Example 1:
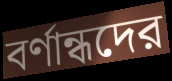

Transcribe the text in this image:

বর্ণান্ধদের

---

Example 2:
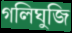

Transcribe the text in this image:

গলিঘুজি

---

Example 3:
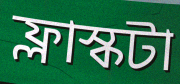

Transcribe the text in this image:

ফ্লাস্কটা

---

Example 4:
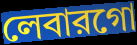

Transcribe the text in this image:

লেবারগো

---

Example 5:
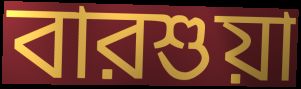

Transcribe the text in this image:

বারশুয়া